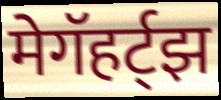
मेगॅहर्ट्झ